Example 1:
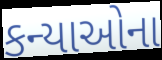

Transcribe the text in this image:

કન્યાઓના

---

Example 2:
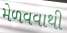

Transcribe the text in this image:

મેળવવાથી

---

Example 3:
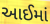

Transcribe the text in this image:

આઈમાં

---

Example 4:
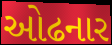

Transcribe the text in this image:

ઓઢનાર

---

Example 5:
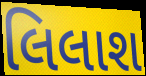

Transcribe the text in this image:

લિલાશ